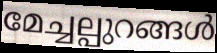
മേച്ചല്പുറങ്ങൾ